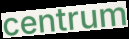
centrum